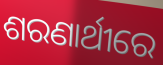
ଶରଣାର୍ଥୀରେ